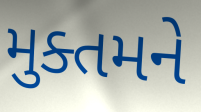
મુક્તમને